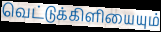
வெட்டுக்கிளியையும்